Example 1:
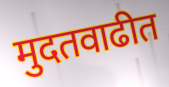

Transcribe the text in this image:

मुदतवाढीत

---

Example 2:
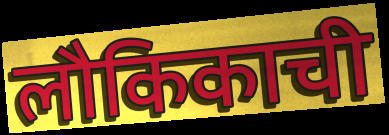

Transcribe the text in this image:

लौकिकाची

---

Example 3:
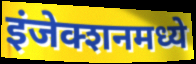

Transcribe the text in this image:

इंजेक्शनमध्ये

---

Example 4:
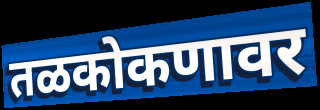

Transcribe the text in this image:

तळकोकणावर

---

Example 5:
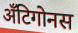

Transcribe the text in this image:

अँटिगोनस